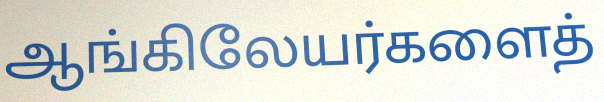
ஆங்கிலேயர்களைத்